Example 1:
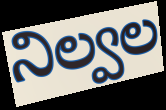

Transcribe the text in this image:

నిల్వల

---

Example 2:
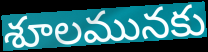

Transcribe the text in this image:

శూలమునకు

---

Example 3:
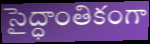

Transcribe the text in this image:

సైద్ధాంతికంగా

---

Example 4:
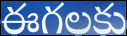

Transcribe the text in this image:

ఈగలకు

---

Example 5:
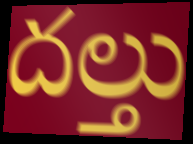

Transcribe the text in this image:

దల్తు